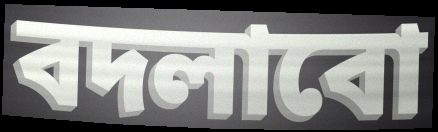
বদলাবো